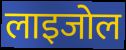
लाइजोल